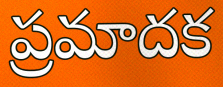
ప్రమాదక